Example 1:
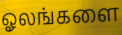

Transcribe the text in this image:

ஓலங்களை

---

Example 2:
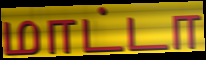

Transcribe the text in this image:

மாட்டா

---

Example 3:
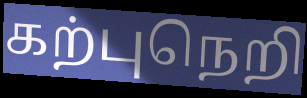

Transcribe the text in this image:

கற்புநெறி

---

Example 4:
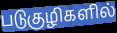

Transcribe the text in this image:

படுகுழிகளில்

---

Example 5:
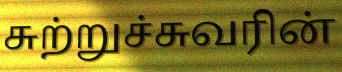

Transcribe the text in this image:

சுற்றுச்சுவரின்